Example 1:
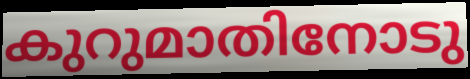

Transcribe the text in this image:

കുറുമാതിനോടു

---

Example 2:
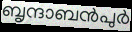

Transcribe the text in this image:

ബൃന്ദാബൻപുർ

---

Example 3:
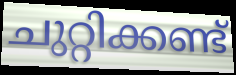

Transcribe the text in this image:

ചുറ്റിക്കണ്ട്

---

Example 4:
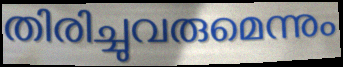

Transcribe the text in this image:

തിരിച്ചുവരുമെന്നും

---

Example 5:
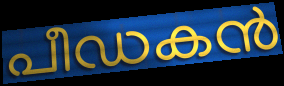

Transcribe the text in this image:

പീഡകൻ